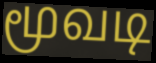
மூவடி